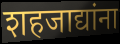
शहजाद्यांना